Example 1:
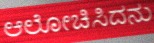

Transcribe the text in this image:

ಆಲೋಚಿಸಿದನು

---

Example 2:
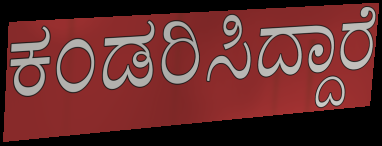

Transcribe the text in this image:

ಕಂಡರಿಸಿದ್ದಾರೆ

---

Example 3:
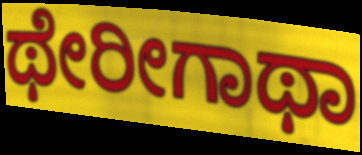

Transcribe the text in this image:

ಥೇರೀಗಾಥಾ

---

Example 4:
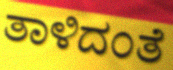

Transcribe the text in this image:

ತಾಳಿದಂತೆ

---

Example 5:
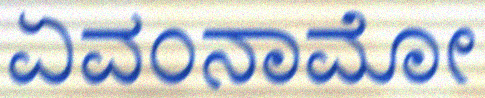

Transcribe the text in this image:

ಏವಂನಾಮೋ